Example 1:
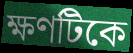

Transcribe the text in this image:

ক্ষণটিকে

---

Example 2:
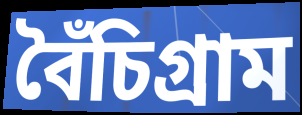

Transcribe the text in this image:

বৈঁচিগ্রাম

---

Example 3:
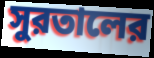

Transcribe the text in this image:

সুরতালের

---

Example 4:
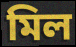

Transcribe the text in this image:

মিল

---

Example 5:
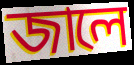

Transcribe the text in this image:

জালে